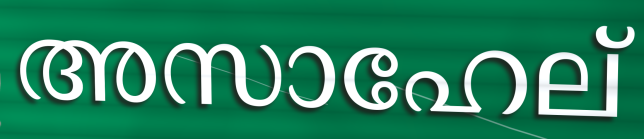
അസാഹേല്